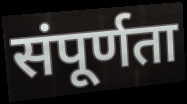
संपूर्णता